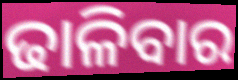
ଢାଳିବାର